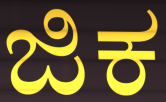
ಜಿಕ